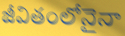
జీవితంలోనైనా